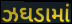
ઝઘડામાં